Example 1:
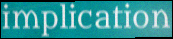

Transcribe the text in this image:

implication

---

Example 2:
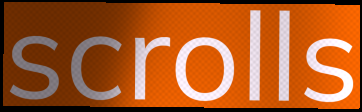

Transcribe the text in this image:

scrolls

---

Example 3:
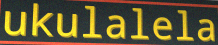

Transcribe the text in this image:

ukulalela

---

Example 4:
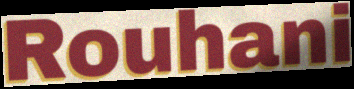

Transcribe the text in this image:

Rouhani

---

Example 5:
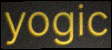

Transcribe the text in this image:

yogic